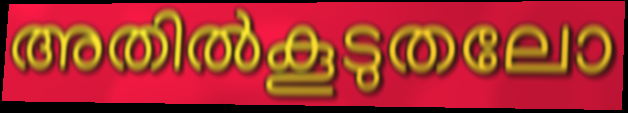
അതിൽകൂടുതലോ